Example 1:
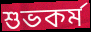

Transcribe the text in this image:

শুভকর্ম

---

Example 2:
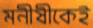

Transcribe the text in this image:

মনীষীকেই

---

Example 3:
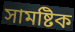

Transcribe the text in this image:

সামষ্টিক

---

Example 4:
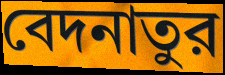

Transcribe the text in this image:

বেদনাতুর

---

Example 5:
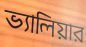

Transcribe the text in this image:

ভ্যালিয়ার